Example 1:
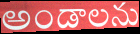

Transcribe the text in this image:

అండాలను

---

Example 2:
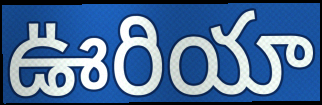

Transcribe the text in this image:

ఊరియా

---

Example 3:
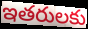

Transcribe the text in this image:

ఇతరులకు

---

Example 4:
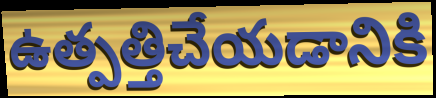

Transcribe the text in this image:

ఉత్పత్తిచేయడానికి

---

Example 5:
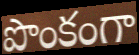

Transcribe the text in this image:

పొంకంగా